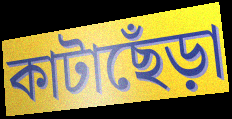
কাটাছেঁড়া